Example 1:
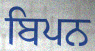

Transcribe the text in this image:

ਬਿਪਨ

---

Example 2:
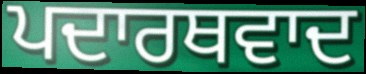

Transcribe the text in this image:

ਪਦਾਰਥਵਾਦ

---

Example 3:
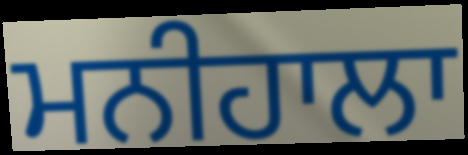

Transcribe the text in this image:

ਮਨੀਹਾਲਾ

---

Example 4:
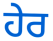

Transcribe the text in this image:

ਹੇਰ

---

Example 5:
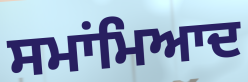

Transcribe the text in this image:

ਸਮਾਂਮਿਆਦ